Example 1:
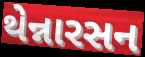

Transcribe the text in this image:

થેન્નારસન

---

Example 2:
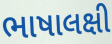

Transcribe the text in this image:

ભાષાલક્ષી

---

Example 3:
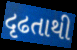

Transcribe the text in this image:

દૃઢતાથી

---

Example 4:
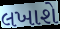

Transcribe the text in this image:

લખાશે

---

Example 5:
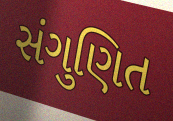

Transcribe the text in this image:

સંગુણિત